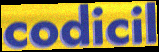
codicil